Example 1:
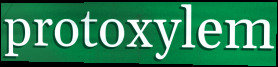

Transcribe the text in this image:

protoxylem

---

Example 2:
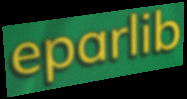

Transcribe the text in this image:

eparlib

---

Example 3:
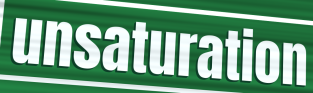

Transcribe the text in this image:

unsaturation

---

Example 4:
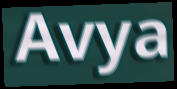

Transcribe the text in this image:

Avya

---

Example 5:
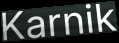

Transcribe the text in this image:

Karnik